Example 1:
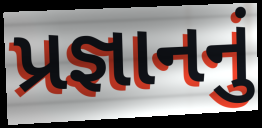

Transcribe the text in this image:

પ્રજ્ઞાનનું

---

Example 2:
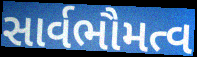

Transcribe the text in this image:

સાર્વભૌમત્વ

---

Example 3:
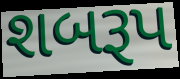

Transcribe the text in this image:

શબરૂપ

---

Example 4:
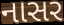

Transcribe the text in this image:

નાસર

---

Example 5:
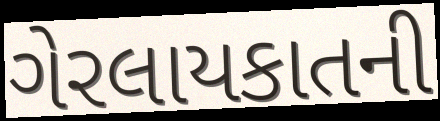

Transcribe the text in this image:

ગેરલાયકાતની